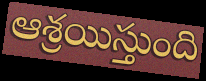
ఆశ్రయిస్తుంది